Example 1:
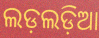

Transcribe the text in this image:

ଲଡ଼ଲଡ଼ିଆ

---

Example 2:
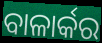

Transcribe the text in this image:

ବାଳାର୍କର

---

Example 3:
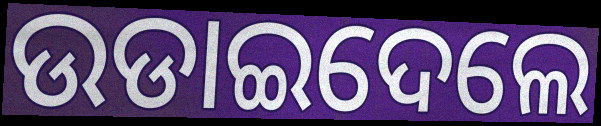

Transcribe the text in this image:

ଉଡାଇଦେଲେ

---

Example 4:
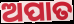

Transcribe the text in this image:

ଅପାତ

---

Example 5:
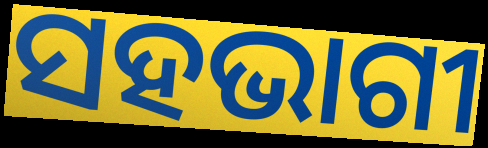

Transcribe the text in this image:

ସହଭାଗୀ